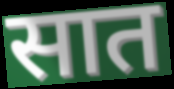
सात